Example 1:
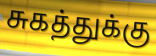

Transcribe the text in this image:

சுகத்துக்கு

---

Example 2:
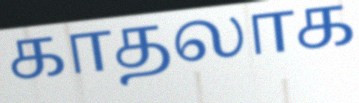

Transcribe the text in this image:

காதலாக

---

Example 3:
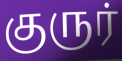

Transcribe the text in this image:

குருர்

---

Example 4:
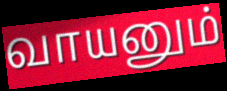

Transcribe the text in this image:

வாயனும்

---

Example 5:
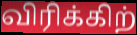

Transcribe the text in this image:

விரிக்கிற்